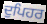
ਦੁਪਿਹਰ